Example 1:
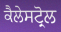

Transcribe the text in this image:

ਕੈਲੇਸਟ੍ਰੋਲ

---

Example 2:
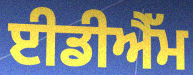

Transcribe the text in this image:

ਈਡੀਐੱਮ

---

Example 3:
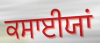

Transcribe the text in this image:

ਕਸਾਈਯਾਂ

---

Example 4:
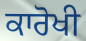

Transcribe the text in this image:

ਕਾਰੋਖੀ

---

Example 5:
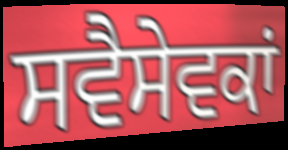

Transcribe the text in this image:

ਸਵੈਸੇਵਕਾਂ